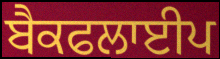
ਬੈਕਫਲਾਈਪ